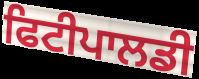
ਫਿਟੀਪਾਲਡੀ